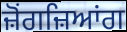
ਜ਼ੋਂਗਜ਼ਿਆਂਗ